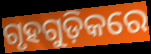
ଗୃହଗୁଡ଼ିକରେ